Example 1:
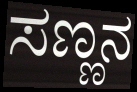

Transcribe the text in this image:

ಸಣ್ಣನ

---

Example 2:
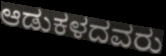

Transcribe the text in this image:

ಆಡುಕಳದವರು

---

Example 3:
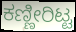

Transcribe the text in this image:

ಕಣ್ಣೀರಿಟ್ಟ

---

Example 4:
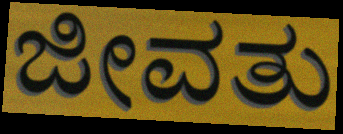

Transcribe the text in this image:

ಜೀವತು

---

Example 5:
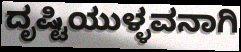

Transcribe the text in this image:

ದೃಷ್ಟಿಯುಳ್ಳವನಾಗಿ